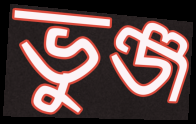
ভুঞ্জ